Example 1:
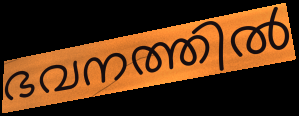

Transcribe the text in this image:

ഭവനത്തിൽ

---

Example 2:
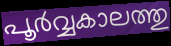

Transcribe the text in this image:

പൂർവ്വകാലത്തു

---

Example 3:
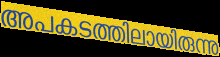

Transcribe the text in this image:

അപകടത്തിലായിരുന്നു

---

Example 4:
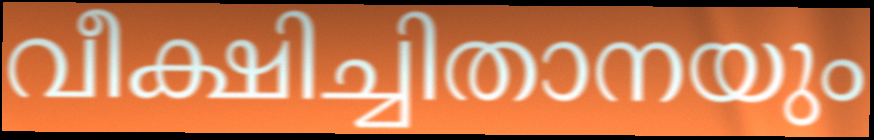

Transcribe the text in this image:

വീക്ഷിച്ചിതാനയും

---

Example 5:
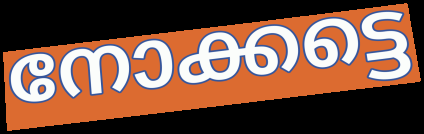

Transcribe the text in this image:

നോക്കട്ടെ